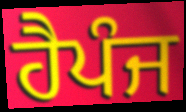
ਹੈਪੰਜ